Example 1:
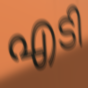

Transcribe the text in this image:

എടി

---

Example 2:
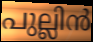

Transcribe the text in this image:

പുല്ലിൻ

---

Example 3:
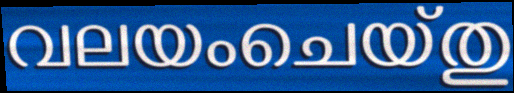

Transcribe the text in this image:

വലയംചെയ്തു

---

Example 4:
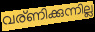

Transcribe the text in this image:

വര്ണിക്കുന്നില്ല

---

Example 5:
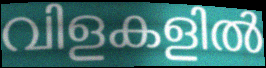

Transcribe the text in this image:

വിളകളിൽ